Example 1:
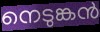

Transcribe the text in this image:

നെടുങ്കൻ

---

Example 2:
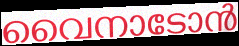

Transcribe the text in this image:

വൈനാടോൻ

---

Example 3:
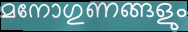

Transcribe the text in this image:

മനോഗുണങ്ങളും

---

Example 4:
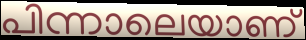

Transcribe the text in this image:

പിന്നാലെയാണ്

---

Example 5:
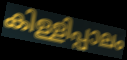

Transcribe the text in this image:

കിള്ളിപ്പാലം